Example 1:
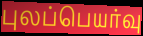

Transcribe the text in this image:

புலப்பெயர்வு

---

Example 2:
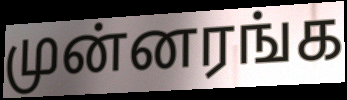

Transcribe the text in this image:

முன்னரங்க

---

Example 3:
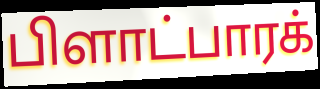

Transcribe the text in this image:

பிளாட்பாரக்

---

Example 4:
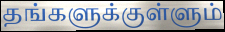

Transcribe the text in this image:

தங்களுக்குள்ளும்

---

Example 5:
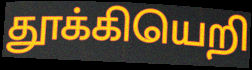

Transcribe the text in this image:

தூக்கியெறி